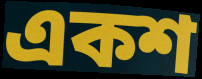
একশ